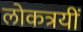
लोकत्रयीं